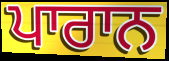
ਪਾਰਾਨ